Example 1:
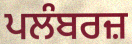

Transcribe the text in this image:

ਪਲੰਬਰਜ਼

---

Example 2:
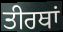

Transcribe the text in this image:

ਤੀਰਥਾਂ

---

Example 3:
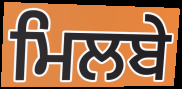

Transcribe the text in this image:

ਮਿਲਬੇ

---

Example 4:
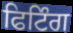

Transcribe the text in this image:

ਫਿਟਿੰਗ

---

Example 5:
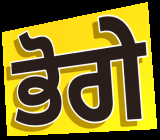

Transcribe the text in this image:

ਭੋਗੇ